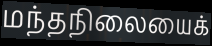
மந்தநிலையைக்